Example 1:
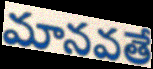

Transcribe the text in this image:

మానవతే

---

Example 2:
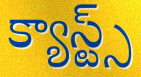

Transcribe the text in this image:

క్యాస్ట్స్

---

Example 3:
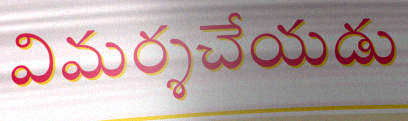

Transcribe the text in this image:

విమర్శచేయడు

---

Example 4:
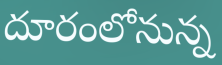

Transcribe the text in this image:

దూరంలోనున్న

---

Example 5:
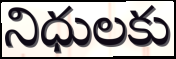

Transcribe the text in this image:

నిధులకు